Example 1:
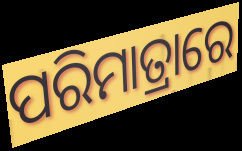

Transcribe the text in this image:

ପରିମାତ୍ରାରେ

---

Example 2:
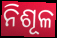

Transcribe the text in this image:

ନିଶୂଳ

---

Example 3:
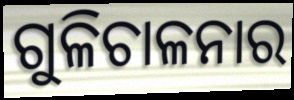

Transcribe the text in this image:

ଗୁଳିଚାଳନାର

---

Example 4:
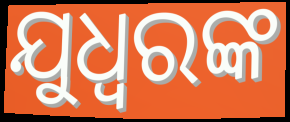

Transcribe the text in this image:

ଯୁଧ୍ୱରଙ୍କ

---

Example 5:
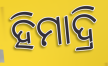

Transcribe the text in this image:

ହିମାଦ୍ରି